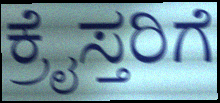
ಕ್ರೈಸ್ತರಿಗೆ